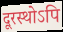
दूरस्थोऽपि